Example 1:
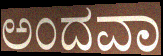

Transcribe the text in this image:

ಅಂದವಾ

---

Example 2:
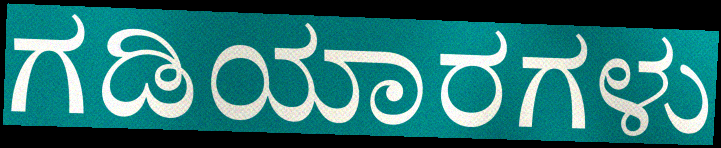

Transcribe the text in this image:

ಗಡಿಯಾರಗಳು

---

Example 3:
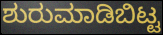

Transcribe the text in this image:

ಶುರುಮಾಡಿಬಿಟ್ಟ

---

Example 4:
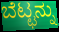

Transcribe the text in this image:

ಬೆಟ್ಟನ್ನು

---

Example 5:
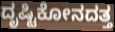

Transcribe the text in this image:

ದೃಷ್ಟಿಕೋನದತ್ತ